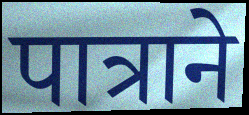
पात्राने